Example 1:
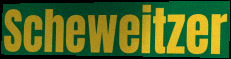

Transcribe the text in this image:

Scheweitzer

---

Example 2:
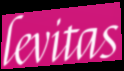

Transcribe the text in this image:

levitas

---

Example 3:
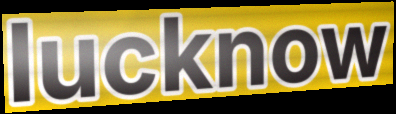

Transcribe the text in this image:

lucknow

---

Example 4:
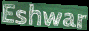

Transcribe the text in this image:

Eshwar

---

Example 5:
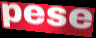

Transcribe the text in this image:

pese